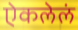
ऐकलेलं